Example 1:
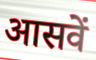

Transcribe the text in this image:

आसवें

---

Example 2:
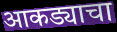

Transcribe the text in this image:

आकड्याचा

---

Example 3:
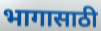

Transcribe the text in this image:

भागासाठी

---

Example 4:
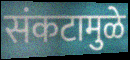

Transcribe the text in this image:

संकटामुळे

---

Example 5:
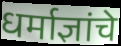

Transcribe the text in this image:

धर्माज्ञांचे